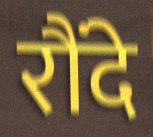
रौंदे